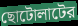
ছোটোলাটের